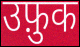
उफ़ुक